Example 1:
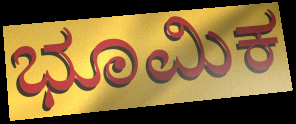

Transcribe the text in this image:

ಭೂಮಿಕ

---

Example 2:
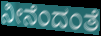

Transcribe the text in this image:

ನೀನೆಂದಂತೆ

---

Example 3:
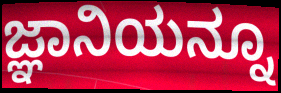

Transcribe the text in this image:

ಜ್ಞಾನಿಯನ್ನೂ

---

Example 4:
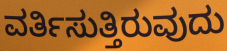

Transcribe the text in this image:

ವರ್ತಿಸುತ್ತಿರುವುದು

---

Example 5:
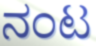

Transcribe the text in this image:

ನಂಟ